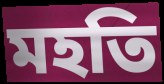
মহতি